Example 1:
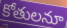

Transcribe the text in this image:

కోతులనూ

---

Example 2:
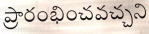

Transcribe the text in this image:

ప్రారంభించవచ్చని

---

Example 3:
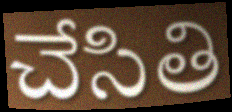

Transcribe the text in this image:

చేసితి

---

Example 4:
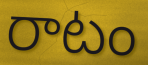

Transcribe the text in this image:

రాటం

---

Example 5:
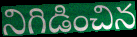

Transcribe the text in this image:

నిగిడించిన